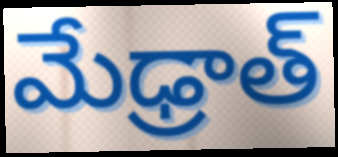
మేఢ్రాత్